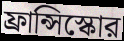
ফ্রান্সিস্কোর